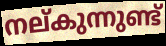
നല്കുന്നുണ്ട്